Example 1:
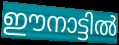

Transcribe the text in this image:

ഈനാട്ടിൽ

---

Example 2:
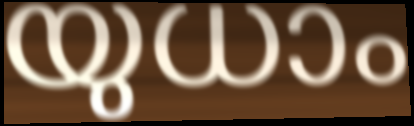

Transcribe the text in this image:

യുധാം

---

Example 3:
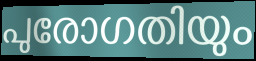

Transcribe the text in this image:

പുരോഗതിയും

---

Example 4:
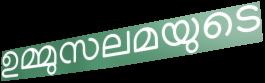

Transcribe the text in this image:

ഉമ്മുസലമയുടെ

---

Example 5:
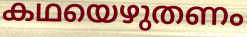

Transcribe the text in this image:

കഥയെഴുതണം